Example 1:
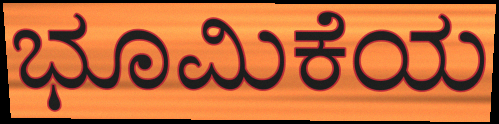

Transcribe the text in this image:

ಭೂಮಿಕೆಯ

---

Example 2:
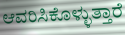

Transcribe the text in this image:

ಆವರಿಸಿಕೊಳ್ಳುತ್ತಾರೆ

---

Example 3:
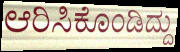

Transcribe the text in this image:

ಆರಿಸಿಕೊಂಡಿದ್ದು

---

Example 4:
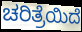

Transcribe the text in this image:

ಚರಿತ್ರೆಯಿದೆ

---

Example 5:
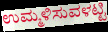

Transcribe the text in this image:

ಉಮ್ಮಳಿಸುವಳಟ್ಟಿ